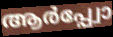
ആർപ്പ്വോ